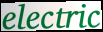
electric